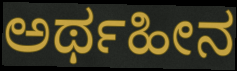
ಅರ್ಥಹೀನ